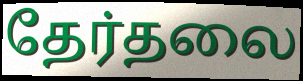
தேர்தலை